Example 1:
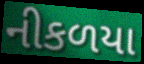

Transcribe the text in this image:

નીકળયા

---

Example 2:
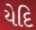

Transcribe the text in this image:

યેદિ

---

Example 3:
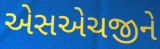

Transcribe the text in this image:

એસએચજીને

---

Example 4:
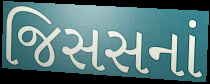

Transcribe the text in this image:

જિસસનાં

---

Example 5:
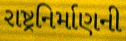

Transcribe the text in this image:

રાષ્ટ્રનિર્માણની